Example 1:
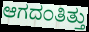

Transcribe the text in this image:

ಆಗದಂತಿತ್ತು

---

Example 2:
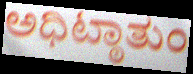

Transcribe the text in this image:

ಅಧಿಟ್ಠಾತುಂ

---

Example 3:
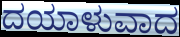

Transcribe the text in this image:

ದಯಾಳುವಾದ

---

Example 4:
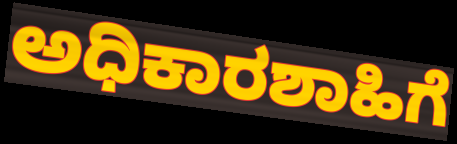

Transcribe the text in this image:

ಅಧಿಕಾರಶಾಹಿಗೆ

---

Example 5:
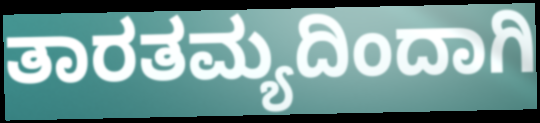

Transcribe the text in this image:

ತಾರತಮ್ಯದಿಂದಾಗಿ